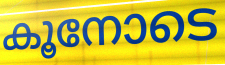
കൂനോടെ